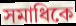
সমাধিকে